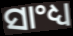
ସାଂଧ୍ୟ